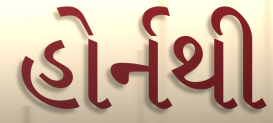
હોર્નથી